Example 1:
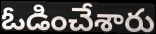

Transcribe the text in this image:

ఓడించేశారు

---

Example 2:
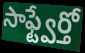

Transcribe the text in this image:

సాఫ్ట్వేర్తో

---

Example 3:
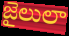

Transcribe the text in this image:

జైలులా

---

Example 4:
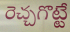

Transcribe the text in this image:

రెచ్చగొట్టే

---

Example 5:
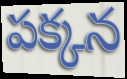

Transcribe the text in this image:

పక్కన